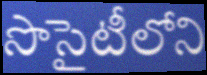
సొసైటీలోని